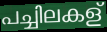
പച്ചിലകള്